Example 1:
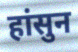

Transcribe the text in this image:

हांसुन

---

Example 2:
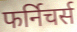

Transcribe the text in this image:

फर्निचर्स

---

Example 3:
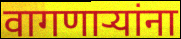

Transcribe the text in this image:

वागणार्‍यांना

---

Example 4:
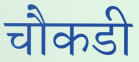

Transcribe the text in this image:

चौकडी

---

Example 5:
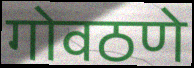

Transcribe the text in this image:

गोवठणे